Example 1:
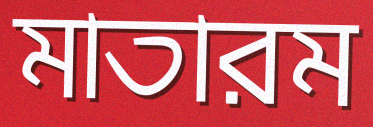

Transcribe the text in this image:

মাতারম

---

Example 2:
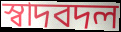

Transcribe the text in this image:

স্বাদবদল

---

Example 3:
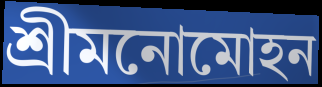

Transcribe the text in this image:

শ্রীমনোমোহন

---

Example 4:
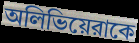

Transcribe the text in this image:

অলিভিয়েরাকে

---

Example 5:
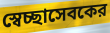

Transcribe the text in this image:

স্বেচ্ছাসেবকের